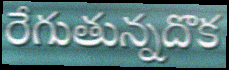
రేగుతున్నదొక